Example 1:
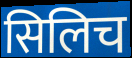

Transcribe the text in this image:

सिलिच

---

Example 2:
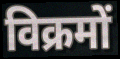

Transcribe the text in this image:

विक्रमों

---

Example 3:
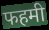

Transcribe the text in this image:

फहमी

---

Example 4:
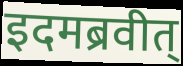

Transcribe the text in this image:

इदमब्रवीत्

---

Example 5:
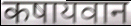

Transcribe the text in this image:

कषायवान